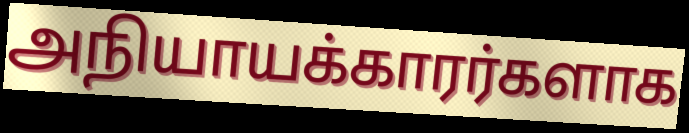
அநியாயக்காரர்களாக